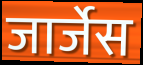
जार्जेस